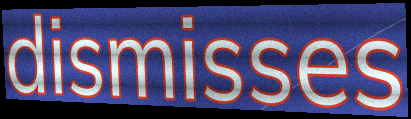
dismisses